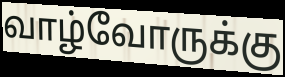
வாழ்வோருக்கு